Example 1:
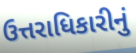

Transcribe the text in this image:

ઉત્તરાધિકારીનું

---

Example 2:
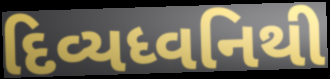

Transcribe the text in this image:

દિવ્યધ્વનિથી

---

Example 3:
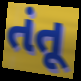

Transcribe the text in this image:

તંતૂ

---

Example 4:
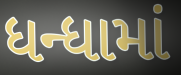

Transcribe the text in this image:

ધન્ધામાં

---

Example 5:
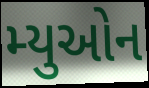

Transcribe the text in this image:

મ્યુઓન